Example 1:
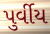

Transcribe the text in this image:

પુર્વીય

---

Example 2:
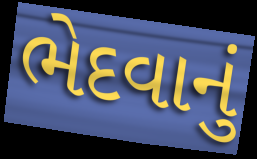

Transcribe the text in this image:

ભેદવાનું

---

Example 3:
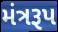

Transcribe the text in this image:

મંત્રરૂપ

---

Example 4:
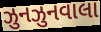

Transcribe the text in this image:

ઝુનઝુનવાલા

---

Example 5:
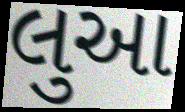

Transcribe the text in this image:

લુઆ